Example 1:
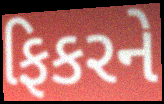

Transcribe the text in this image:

ફિકરને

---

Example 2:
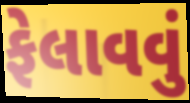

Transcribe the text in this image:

ફેલાવવું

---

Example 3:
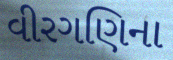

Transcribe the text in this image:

વીરગણિના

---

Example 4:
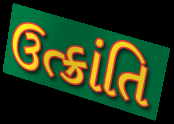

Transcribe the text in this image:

ઉત્ક્રાંતિ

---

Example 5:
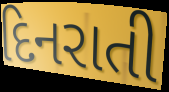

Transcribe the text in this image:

દિનરાતી